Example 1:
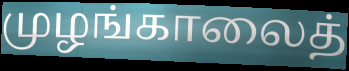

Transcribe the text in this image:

முழங்காலைத்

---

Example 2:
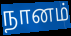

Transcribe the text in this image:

நானம்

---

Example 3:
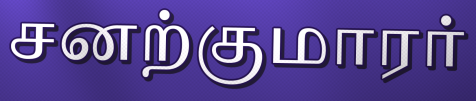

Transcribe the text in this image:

சனற்குமாரர்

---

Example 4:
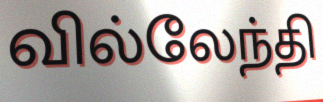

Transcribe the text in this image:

வில்லேந்தி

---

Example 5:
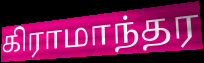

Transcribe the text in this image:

கிராமாந்தர